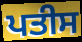
ਪਤੀਸ